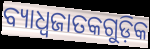
ବ୍ୟାଧ୍ଵଜାତକଗୁଡ଼ିକ